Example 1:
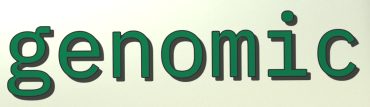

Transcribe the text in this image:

genomic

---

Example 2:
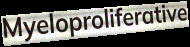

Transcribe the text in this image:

Myeloproliferative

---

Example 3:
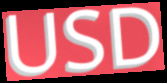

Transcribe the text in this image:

USD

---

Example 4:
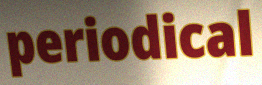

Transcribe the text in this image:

periodical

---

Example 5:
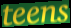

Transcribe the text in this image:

teens